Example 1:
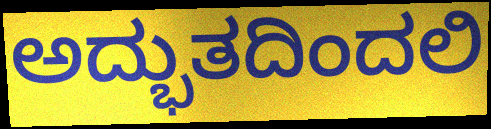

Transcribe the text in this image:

ಅದ್ಭುತದಿಂದಲಿ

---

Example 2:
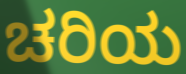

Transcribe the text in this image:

ಚರಿಯ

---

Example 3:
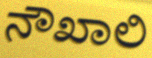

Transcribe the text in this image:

ನೌಖಾಲಿ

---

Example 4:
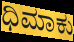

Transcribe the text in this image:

ಧಿಮಾಕು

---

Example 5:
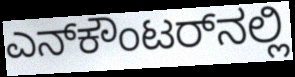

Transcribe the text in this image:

ಎನ್‌ಕೌಂಟರ್‌ನಲ್ಲಿ